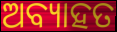
ଅବ୍ୟାହତ